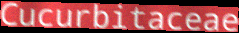
Cucurbitaceae